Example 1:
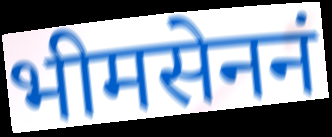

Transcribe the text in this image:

भीमसेननं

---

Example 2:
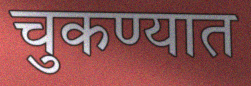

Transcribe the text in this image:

चुकण्यात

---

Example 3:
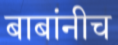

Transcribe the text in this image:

बाबांनीच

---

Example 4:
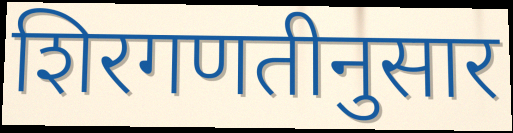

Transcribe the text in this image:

शिरगणतीनुसार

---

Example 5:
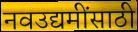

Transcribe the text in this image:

नवउद्यमींसाठी